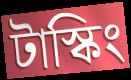
টাস্কিং